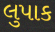
લુપાક